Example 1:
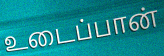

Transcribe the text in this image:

உடைப்பான்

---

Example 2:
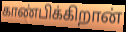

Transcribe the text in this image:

காண்பிக்கிறான்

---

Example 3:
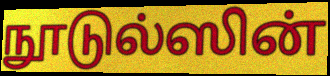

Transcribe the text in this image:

நூடுல்ஸின்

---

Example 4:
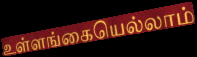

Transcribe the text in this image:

உள்ளங்கையெல்லாம்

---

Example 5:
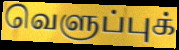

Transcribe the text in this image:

வெளுப்புக்